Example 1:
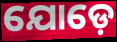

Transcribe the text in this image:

ଯୋଡ଼େ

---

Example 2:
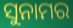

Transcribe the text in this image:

ସୁନାମର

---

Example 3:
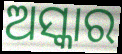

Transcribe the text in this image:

ଅସ୍କାର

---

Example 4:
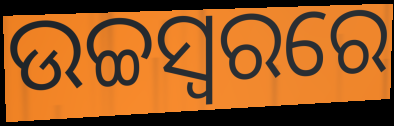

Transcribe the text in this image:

ଉଚ୍ଚସ୍ଵରରେ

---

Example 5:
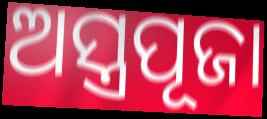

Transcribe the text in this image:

ଅସ୍ତ୍ରପୂଜା